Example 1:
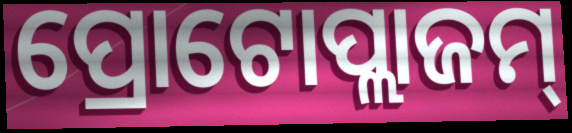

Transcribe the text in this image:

ପ୍ରୋଟୋପ୍ଲାଜମ୍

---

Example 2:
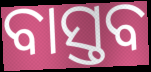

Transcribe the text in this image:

ବାସ୍ତବ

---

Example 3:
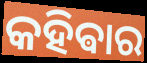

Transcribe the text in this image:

କହିଵାର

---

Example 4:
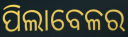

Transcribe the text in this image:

ପିଲାବେଳର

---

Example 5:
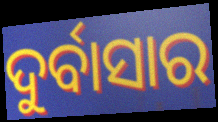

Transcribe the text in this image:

ଦୁର୍ବାସାର